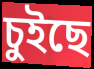
চুইছে